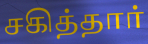
சகித்தார்